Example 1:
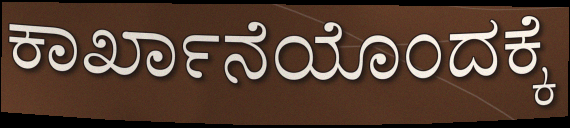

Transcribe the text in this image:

ಕಾರ್ಖಾನೆಯೊಂದಕ್ಕೆ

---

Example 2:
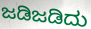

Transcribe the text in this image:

ಜಡಿಜಡಿದು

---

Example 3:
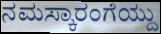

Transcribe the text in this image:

ನಮಸ್ಕಾರಂಗೆಯ್ದು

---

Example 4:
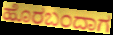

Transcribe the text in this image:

ಹೊರಬಂದಾಗ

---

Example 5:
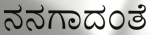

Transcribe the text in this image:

ನನಗಾದಂತೆ